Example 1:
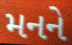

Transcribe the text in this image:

મનને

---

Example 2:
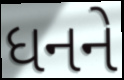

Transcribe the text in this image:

ધનને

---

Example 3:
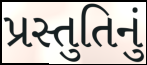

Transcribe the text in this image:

પ્રસ્તુતિનું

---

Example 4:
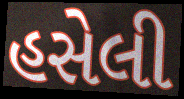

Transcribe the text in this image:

હસેલી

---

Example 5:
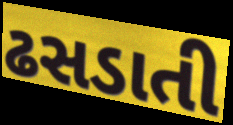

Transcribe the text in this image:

ઢસડાતી